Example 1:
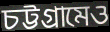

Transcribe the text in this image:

চট্টগ্রামেও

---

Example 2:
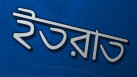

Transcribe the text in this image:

ইতরাত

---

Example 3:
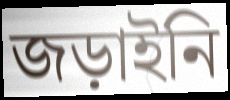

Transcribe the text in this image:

জড়াইনি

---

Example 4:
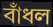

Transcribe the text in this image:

বাঁধল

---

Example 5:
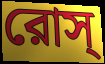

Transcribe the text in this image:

রোস্